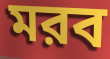
মরব